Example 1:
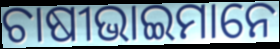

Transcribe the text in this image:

ଚାଷୀଭାଇମାନେ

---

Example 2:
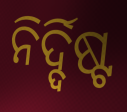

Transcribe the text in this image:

ନିର୍ଦ୍ଦିଷ୍ଟ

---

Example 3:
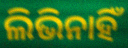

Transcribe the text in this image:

ଲିଭିନାହିଁ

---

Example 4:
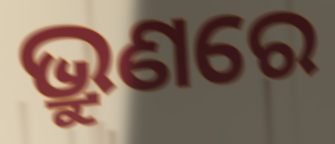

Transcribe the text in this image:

ଭ୍ରୁଣରେ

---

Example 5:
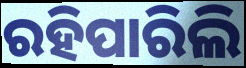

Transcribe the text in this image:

ରହିପାରିଲି